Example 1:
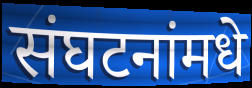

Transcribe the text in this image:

संघटनांमधे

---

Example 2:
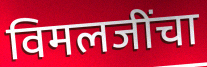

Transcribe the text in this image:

विमलजींचा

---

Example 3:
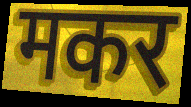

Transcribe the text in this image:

मकर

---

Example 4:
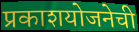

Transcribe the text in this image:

प्रकाशयोजनेची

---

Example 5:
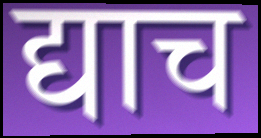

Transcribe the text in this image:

द्याच